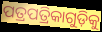
ପତ୍ରପତ୍ରିକାଗୁଡ଼ିକୁ